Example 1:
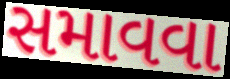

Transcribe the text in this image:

સમાવવા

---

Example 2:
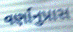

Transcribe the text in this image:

વર્ણાનુપ્રાસ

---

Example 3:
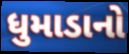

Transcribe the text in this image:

ધુમાડાનો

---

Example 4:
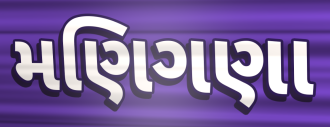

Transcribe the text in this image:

મણિગણા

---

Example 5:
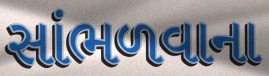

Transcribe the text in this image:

સાંભળવાના